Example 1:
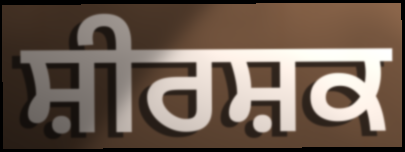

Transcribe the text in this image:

ਸ਼ੀਰਸ਼ਕ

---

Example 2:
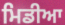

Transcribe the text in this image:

ਮਿਡੀਆ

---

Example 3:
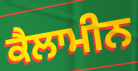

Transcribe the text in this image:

ਕੈਲਾਮੀਨ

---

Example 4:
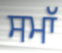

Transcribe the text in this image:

ਸਮਾੱ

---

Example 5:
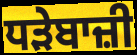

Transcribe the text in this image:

ਧੜੇਬਾਜ਼ੀ